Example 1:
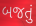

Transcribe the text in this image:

બજતું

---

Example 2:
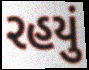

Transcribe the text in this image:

રહયું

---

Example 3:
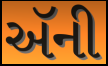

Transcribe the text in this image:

ઍની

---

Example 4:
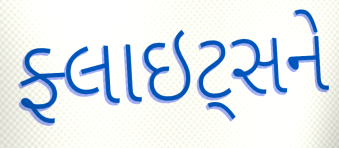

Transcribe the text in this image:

ફ્લાઇટ્સને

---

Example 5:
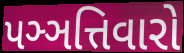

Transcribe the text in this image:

પઞ્ઞત્તિવારો